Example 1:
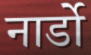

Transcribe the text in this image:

नार्डो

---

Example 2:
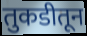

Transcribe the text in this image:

तुकडीतून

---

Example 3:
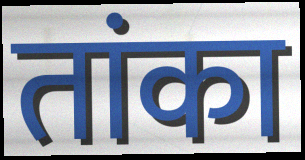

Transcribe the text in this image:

तांका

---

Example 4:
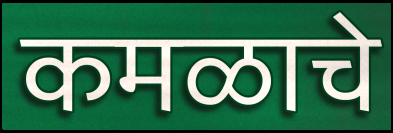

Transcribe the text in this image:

कमळाचे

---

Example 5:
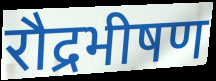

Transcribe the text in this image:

रौद्रभीषण